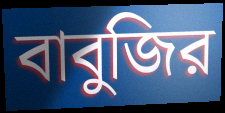
বাবুজির